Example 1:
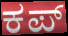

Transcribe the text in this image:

ಕಪ್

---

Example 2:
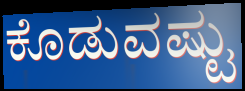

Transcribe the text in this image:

ಕೊಡುವಷ್ಟು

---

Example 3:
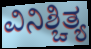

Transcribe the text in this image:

ವಿನಿಶ್ಚಿತ್ಯ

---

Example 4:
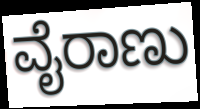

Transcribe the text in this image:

ವೈರಾಣು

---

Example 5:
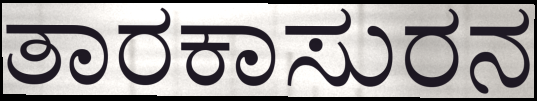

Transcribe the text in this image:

ತಾರಕಾಸುರನ